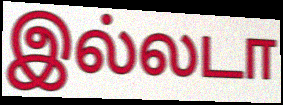
இல்லடா